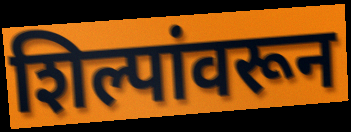
शिल्पांवरून